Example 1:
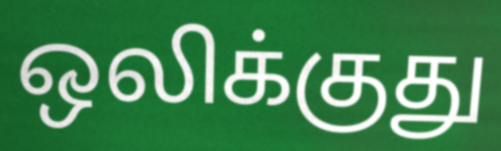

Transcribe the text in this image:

ஒலிக்குது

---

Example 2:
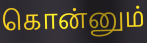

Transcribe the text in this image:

கொன்னும்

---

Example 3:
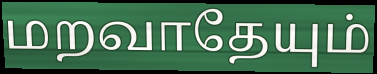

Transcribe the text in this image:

மறவாதேயும்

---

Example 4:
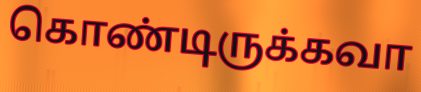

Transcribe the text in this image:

கொண்டிருக்கவா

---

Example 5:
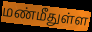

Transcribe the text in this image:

மண்மீதுள்ள